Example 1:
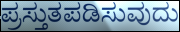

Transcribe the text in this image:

ಪ್ರಸ್ತುತಪಡಿಸುವುದು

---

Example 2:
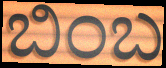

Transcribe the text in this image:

ಬಿಂಬ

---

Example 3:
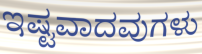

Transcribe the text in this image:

ಇಷ್ಟವಾದವುಗಳು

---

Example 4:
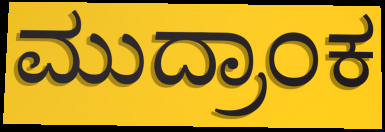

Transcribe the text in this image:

ಮುದ್ರಾಂಕ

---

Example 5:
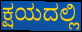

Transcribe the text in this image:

ಕ್ಷಯದಲ್ಲಿ